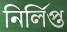
নিৰ্লিপ্ত